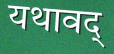
यथावद्